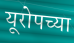
यूरोपच्या